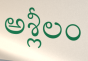
అశ్లీలం